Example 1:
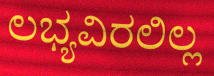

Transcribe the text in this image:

ಲಭ್ಯವಿರಲಿಲ್ಲ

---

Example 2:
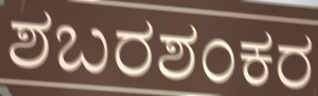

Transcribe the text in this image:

ಶಬರಶಂಕರ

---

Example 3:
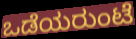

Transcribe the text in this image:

ಒಡೆಯರುಂಟೆ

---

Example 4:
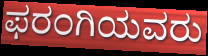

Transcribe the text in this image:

ಫರಂಗಿಯವರು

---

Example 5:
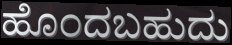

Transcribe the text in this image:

ಹೊಂದಬಹುದು